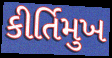
કીર્તિમુખ